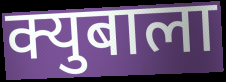
क्युबाला